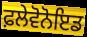
ਫ਼ਲੇਵੋਨੋਇਡ